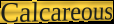
Calcareous